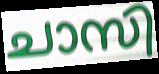
ചാസി